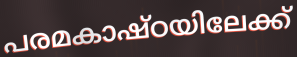
പരമകാഷ്ഠയിലേക്ക്